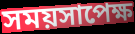
সময়সাপেক্ষ